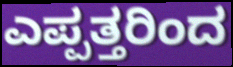
ಎಪ್ಪತ್ತರಿಂದ